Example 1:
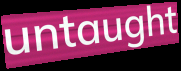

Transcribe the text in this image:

untaught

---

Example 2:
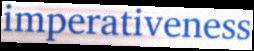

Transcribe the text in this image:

imperativeness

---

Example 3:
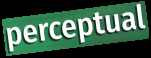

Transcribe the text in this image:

perceptual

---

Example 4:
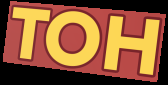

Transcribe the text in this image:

TOH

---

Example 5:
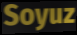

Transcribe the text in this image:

Soyuz